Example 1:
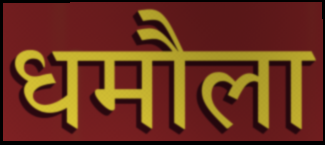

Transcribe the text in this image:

धमौला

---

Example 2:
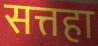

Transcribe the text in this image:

सत्तहा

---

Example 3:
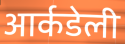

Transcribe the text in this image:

आर्कडेली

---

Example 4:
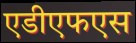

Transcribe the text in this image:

एडीएफएस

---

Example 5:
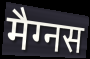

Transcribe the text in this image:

मैग्नस